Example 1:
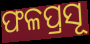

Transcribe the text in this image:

ଫଳପ୍ରସୂ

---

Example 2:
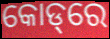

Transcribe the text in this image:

କୋଡ୍‌ରେ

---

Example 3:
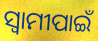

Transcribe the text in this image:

ସ୍ୱାମୀପାଇଁ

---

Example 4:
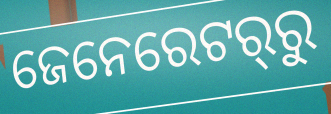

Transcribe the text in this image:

ଜେନେରେଟର୍‌ରୁ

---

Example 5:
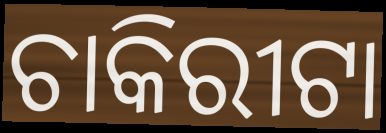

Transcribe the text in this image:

ଚାକିରୀଟା